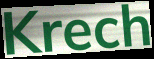
Krech